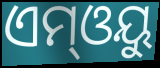
ଏମ୍ଓୟୁ